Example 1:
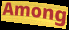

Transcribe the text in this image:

Among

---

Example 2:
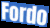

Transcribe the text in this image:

Fordo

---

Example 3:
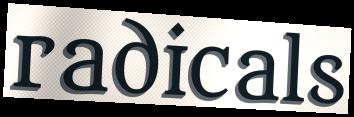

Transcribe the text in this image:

radicals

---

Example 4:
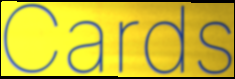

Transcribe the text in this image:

Cards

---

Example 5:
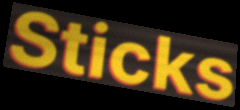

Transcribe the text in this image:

Sticks